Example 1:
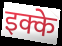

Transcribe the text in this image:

इक्के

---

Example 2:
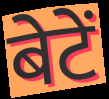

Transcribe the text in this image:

बेटें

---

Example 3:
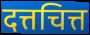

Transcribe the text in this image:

दत्तचित्त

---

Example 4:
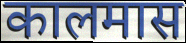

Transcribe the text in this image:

कालमास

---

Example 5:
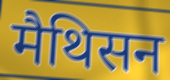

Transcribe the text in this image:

मैथिसन